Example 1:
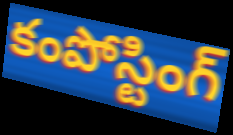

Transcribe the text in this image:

కంపోస్టింగ్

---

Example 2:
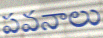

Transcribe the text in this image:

పవనాలు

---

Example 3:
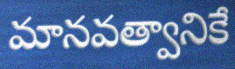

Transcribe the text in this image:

మానవత్వానికే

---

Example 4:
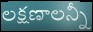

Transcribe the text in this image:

లక్షణాలన్నీ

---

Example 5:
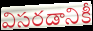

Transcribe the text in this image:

విసరడానికీ